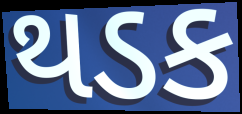
થડક